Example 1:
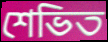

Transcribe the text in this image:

শেভিত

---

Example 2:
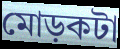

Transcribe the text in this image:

মোড়কটা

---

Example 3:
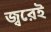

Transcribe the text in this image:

জ্বরেই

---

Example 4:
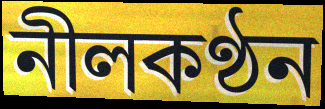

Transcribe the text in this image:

নীলকণ্ঠন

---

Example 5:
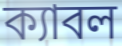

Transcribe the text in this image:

ক্যাবল